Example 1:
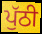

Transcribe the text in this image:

ਪੁੱਠੀ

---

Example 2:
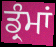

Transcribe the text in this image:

ਡ੍ਰੰਮਾਂ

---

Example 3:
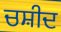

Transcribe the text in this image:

ਚਸ਼ੀਦ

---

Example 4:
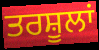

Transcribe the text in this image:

ਤਰਸ਼ੂਲਾਂ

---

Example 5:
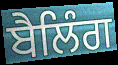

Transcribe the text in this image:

ਬੈਲਿੰਗ